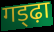
गड्ढ़ा